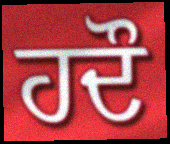
ਹਦੌ